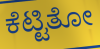
ಕೆಟ್ಟಿತೋ